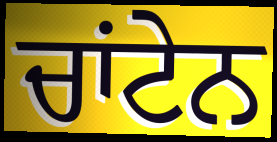
ਚਾਂਟੇਨ